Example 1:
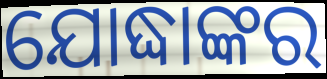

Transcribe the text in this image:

ଯୋଦ୍ଧାଙ୍କର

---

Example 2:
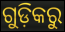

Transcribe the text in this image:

ଗୁଡ଼ିକରୁ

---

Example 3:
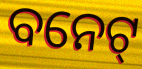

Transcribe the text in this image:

ବନେଟ୍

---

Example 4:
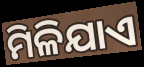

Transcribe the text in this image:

ମିଳିଯାଏ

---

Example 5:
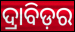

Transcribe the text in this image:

ଦ୍ରାବିଡ଼ର